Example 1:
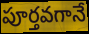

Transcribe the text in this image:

పూర్తవగానే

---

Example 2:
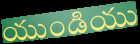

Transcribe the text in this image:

యుండియు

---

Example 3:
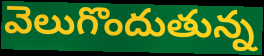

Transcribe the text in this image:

వెలుగొందుతున్న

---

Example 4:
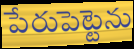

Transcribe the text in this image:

పేరుపెట్టెను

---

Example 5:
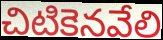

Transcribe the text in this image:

చిటికెనవేలి